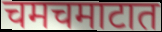
चमचमाटात